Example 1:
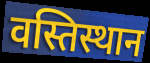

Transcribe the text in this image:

वस्तिस्थान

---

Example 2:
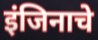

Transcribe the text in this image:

इंजिनाचे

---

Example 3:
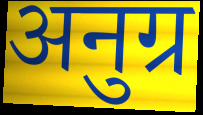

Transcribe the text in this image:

अनुग्र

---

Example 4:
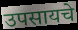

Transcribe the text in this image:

उपसायचे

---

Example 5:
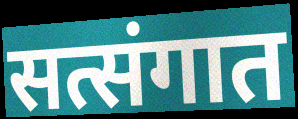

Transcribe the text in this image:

सत्संगात